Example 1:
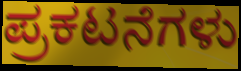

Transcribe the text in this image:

ಪ್ರಕಟನೆಗಳು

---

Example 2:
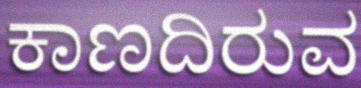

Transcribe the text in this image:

ಕಾಣದಿರುವ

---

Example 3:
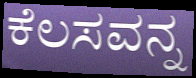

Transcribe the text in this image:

ಕೆಲಸವನ್ನ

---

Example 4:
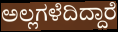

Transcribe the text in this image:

ಅಲ್ಲಗಳೆದಿದ್ದಾರೆ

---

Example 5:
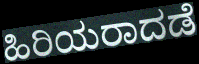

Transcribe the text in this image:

ಹಿರಿಯರಾದಡೆ